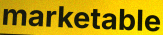
marketable